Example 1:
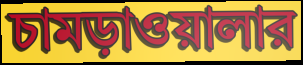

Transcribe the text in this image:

চামড়াওয়ালার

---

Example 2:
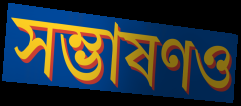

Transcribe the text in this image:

সম্ভাষণও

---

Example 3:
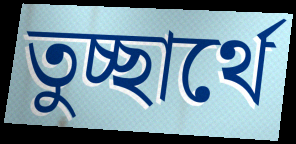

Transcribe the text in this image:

তুচ্ছার্থে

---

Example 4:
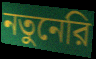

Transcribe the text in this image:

নতুনেরি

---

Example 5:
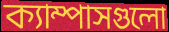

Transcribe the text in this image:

ক্যাম্পাসগুলো